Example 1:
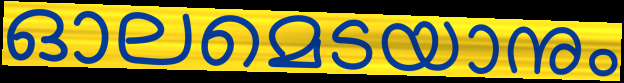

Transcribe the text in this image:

ഓലമെടയാനും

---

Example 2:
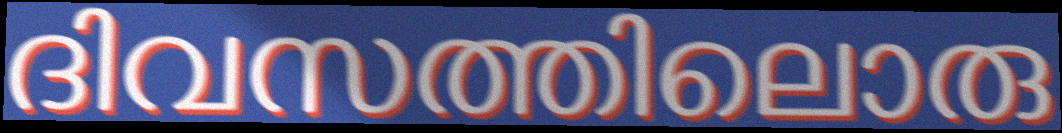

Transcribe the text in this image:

ദിവസത്തിലൊരു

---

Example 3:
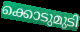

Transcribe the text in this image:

ക്കൊടുമുടി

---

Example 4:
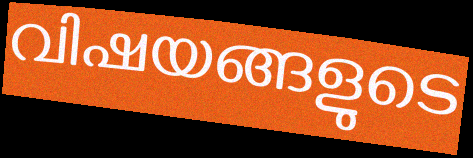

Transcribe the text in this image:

വിഷയങ്ങളുടെ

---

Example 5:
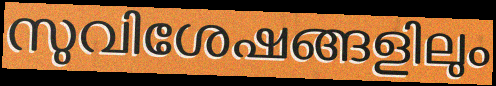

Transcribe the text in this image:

സുവിശേഷങ്ങളിലും